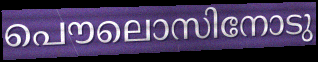
പൌലൊസിനോടു